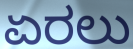
ಏರಲು